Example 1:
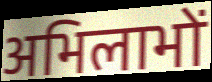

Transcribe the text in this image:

अभिलाभों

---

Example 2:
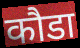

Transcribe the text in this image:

कौडा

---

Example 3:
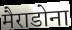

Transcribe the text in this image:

मैराडोना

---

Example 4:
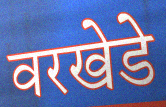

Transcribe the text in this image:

वरखेडे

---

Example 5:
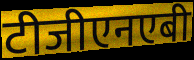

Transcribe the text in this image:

टीजीएनएबी